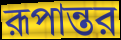
রূপান্তর